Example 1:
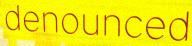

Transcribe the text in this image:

denounced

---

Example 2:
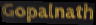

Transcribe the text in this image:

Gopalnath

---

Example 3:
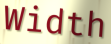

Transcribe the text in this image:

Width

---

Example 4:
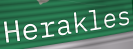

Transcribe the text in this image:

Herakles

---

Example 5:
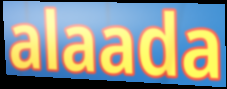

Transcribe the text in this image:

alaada